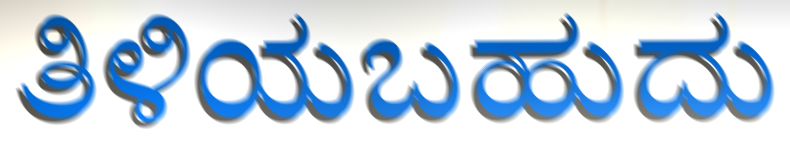
ತಿಳಿಯಬಹುದು